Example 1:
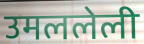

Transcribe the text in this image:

उमललेली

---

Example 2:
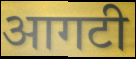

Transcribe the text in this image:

आगटी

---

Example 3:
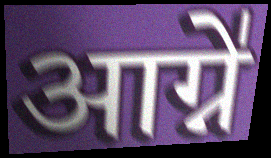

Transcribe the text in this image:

आग्ने॑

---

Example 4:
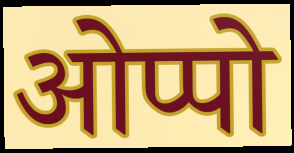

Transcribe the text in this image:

ओप्पो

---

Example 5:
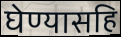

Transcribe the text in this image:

घेण्यासहि